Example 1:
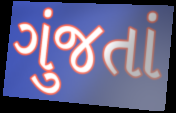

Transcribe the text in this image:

ગુંજતાં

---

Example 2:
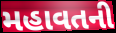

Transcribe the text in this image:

મહાવતની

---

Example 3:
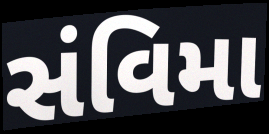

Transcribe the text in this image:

સંવિમા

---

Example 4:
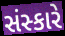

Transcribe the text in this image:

સંસ્કારે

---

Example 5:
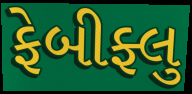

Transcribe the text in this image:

ફેબીફ્લુ